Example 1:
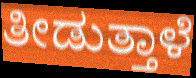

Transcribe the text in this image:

ತೀಡುತ್ತಾಳೆ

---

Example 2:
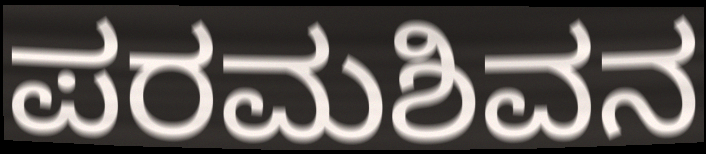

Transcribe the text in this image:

ಪರಮಶಿವನ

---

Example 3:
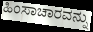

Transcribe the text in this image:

ಹಿಂಸಾಚಾರವನ್ನು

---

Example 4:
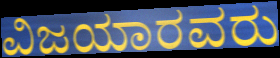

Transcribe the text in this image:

ವಿಜಯಾರವರು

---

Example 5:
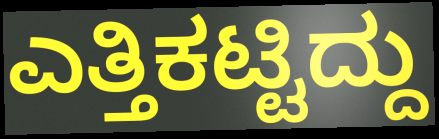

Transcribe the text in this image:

ಎತ್ತಿಕಟ್ಟಿದ್ದು